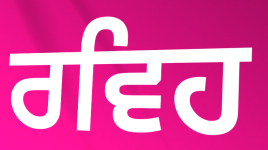
ਰਵਿਹ